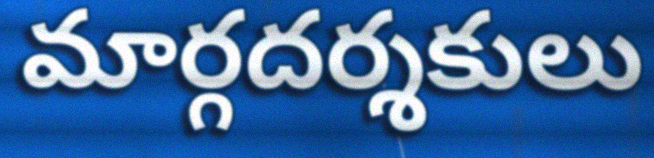
మార్గదర్శకులు